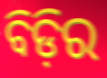
ବିଡ଼ିର